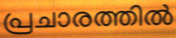
പ്രചാരത്തിൽ